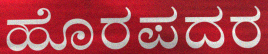
ಹೊರಪದರ